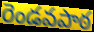
రెండవపాఠ